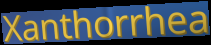
Xanthorrhea